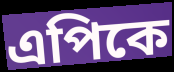
এপিকে